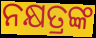
ନକ୍ଷତ୍ରଙ୍କ